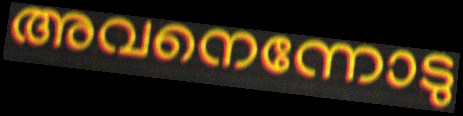
അവനെന്നോടു